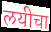
लयीचा